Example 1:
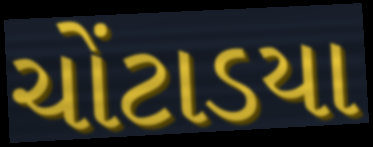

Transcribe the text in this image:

ચોંટાડયા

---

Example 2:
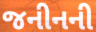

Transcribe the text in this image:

જનીનની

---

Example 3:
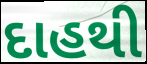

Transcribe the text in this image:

દાહથી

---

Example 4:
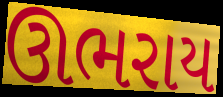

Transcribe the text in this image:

ઊભરાય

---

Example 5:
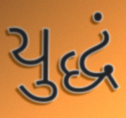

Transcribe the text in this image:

યુદ્ધં